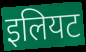
इलियट